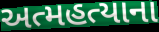
અત્મહત્યાના